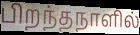
பிறந்தநாளில்